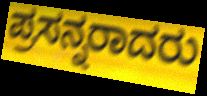
ಪ್ರಸನ್ನರಾದರು